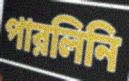
পারলিনি